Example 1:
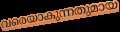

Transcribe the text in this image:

വരെയാകുന്നതുമായ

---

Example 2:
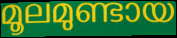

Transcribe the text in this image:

മൂലമുണ്ടായ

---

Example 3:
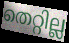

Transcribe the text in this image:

തെറ്റില്ല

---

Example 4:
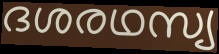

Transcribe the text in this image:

ദശരഥസ്യ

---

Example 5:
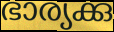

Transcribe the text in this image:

ഭാര്യക്കു